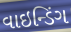
વાઇન્ડિંગ